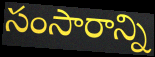
సంసారాన్ని